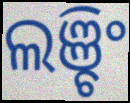
ଲଞ୍ଚିଂ